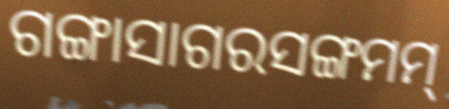
ଗଙ୍ଗାସାଗରସଙ୍ଗମମ୍